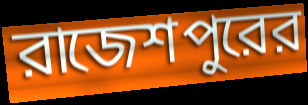
রাজেশপুরের